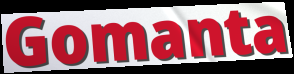
Gomanta